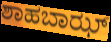
ಶಾಹಬಾಝ್